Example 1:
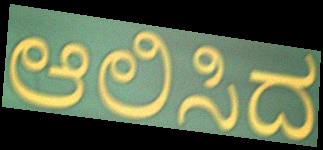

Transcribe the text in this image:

ಆಲಿಸಿದ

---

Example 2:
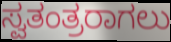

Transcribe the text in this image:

ಸ್ವತಂತ್ರರಾಗಲು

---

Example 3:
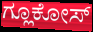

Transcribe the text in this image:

ಗ್ಲೂಕೋಸ್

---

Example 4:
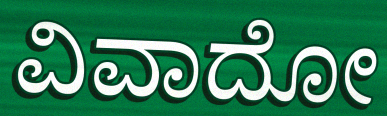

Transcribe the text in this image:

ವಿವಾದೋ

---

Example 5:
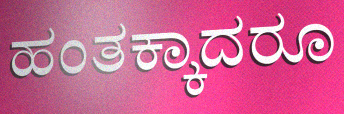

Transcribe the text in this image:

ಹಂತಕ್ಕಾದರೂ